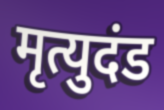
मृत्युदंड